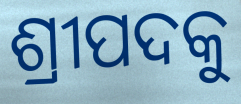
ଶ୍ରୀପଦକୁ